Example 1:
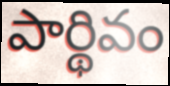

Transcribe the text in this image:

పార్థివం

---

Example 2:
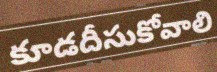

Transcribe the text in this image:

కూడదీసుకోవాలి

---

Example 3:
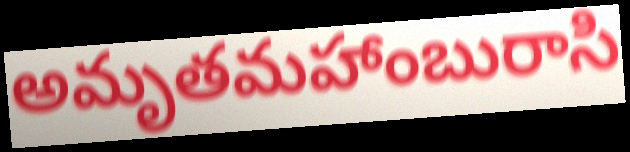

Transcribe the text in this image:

అమృతమహాంబురాసి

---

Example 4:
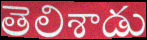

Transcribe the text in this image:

తెలిశాడు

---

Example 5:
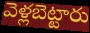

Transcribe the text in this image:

వెళ్లబెట్టారు